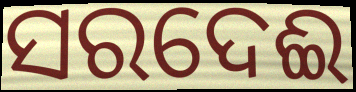
ସରଦେଈ